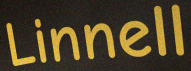
Linnell